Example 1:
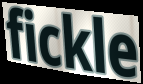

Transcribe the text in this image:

fickle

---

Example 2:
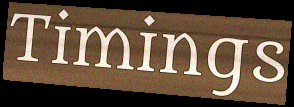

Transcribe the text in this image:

Timings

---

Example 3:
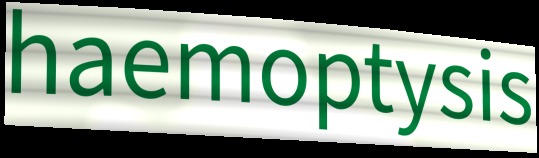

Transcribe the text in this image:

haemoptysis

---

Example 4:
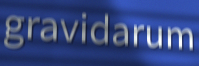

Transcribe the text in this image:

gravidarum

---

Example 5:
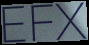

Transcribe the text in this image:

EFX